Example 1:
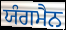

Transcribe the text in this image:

ਯੰਗਮੈਨ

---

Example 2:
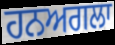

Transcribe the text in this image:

ਹਨਅਗਲਾ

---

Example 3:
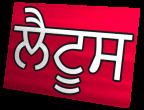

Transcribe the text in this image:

ਲੈਟੂਸ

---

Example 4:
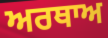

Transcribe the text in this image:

ਅਰਥਾਅ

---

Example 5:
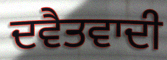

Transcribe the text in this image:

ਦਵੈਤਵਾਦੀ